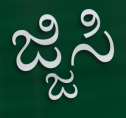
ಜ್ಜಿಸಿ